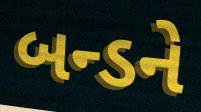
બન્ડને